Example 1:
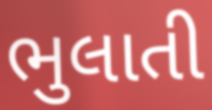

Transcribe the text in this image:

ભુલાતી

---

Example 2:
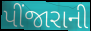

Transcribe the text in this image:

પીંજારાની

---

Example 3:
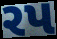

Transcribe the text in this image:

રપ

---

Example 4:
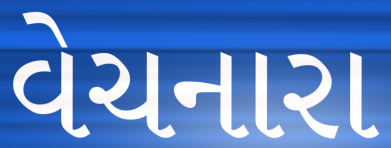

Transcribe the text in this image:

વેચનારા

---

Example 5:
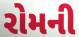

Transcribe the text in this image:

રોમની